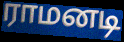
ராமனடி